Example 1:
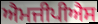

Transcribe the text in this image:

ਐਮਜੀਪੀਐਸ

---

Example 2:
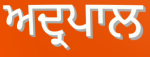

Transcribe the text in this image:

ਅਦ੍ਰਪਾਲ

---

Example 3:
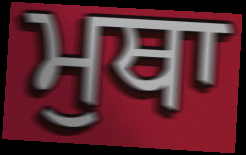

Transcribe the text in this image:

ਮੁਥਾ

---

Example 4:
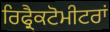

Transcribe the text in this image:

ਰਿਫ੍ਰੈਕਟੋਮੀਟਰਾਂ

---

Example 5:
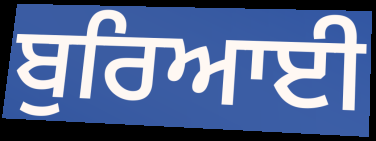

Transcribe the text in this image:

ਬੁਰਿਆਈ